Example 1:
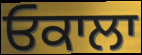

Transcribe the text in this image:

ਓਕਾਲਾ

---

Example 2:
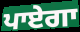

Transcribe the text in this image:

ਪਾਏਗਾ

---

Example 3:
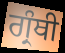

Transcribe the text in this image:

ਗ੍ਰੰਥੀ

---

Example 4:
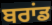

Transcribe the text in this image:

ਬਰਾਂਡ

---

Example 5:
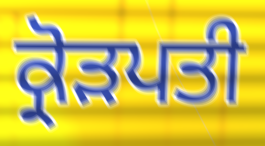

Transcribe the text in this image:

ਕ੍ਰੋੜਪਤੀ